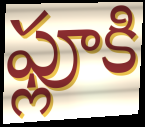
ఫ్లూకి